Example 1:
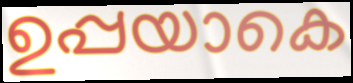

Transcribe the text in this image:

ഉപ്പയാകെ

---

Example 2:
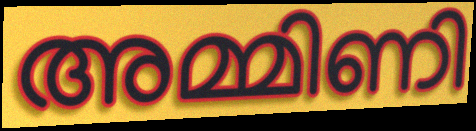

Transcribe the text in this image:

അമ്മിണി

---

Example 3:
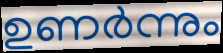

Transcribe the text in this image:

ഉണർന്നും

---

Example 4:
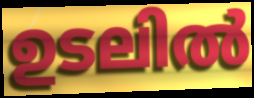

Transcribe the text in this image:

ഉടലിൽ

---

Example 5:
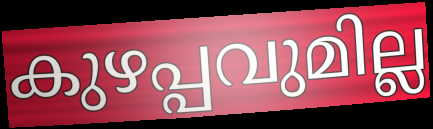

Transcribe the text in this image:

കുഴപ്പവുമില്ല